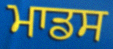
ਮਾਡਸ